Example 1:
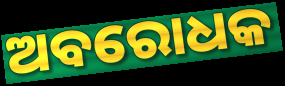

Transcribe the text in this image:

ଅବରୋଧକ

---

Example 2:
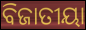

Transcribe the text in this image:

ବିଜାତୀୟା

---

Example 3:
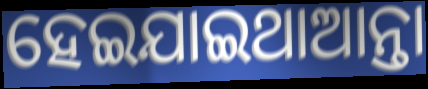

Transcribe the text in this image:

ହେଇଯାଇଥାଆନ୍ତା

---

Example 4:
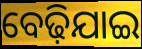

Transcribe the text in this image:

ବେଢ଼ିଯାଇ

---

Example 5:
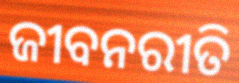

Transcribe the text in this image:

ଜୀବନରୀତି